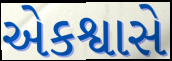
એકશ્વાસે